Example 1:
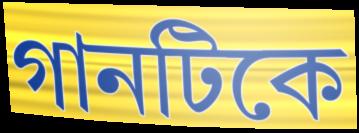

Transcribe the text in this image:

গানটিকে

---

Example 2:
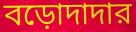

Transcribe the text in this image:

বড়োদাদার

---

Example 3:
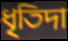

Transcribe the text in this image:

ধৃতিদা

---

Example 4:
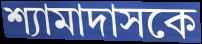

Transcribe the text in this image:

শ্যামাদাসকে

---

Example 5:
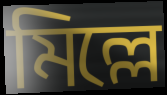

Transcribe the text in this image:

মিল্লে